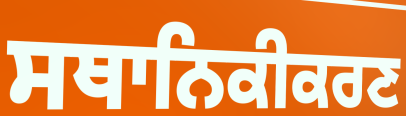
ਸਥਾਨਿਕੀਕਰਣ